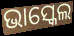
ଭାସ୍କେଲ